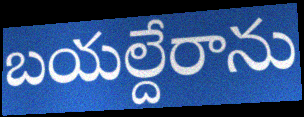
బయల్దేరాను